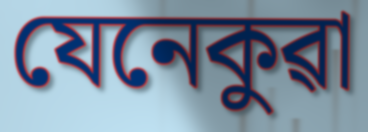
যেনেকুৱা